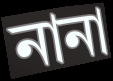
নানা